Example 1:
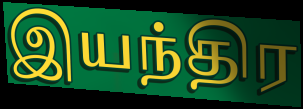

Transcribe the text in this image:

இயந்திர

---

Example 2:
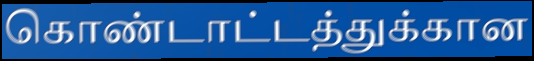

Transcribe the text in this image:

கொண்டாட்டத்துக்கான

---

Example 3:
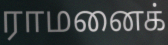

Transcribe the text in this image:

ராமனைக்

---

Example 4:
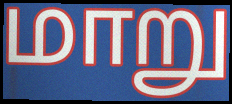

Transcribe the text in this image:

மாறு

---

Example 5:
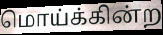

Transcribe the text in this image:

மொய்க்கின்ற